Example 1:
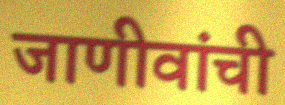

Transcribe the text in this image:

जाणीवांची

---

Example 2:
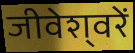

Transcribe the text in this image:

जीवेश्वरें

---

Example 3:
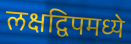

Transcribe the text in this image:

लक्षद्विपमध्ये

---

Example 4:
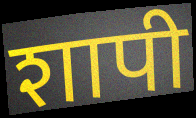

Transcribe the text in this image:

शापी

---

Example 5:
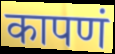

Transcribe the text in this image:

कापणं